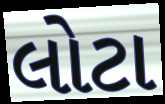
લોટા